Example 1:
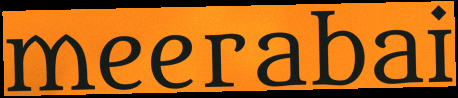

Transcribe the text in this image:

meerabai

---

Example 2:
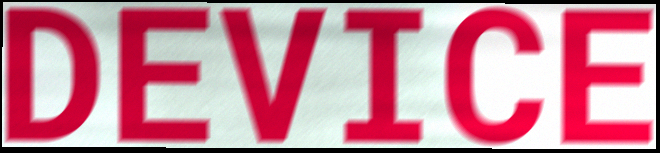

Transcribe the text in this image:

DEVICE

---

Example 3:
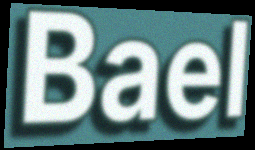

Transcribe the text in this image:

Bael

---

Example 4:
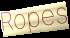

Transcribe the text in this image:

Ropes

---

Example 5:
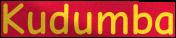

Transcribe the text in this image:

Kudumba